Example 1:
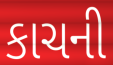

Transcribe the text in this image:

કાચની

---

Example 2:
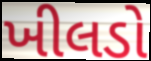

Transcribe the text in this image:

ખીલડો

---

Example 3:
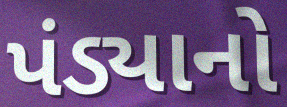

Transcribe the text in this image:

પંડ્યાનો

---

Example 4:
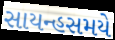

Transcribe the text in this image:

સાયન્હસમયે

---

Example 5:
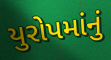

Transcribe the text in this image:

યુરોપમાંનું